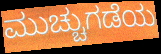
ಮುಚ್ಚುಗಡೆಯ